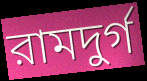
রামদুর্গ